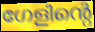
ഗേളിന്റെ